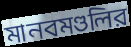
মানবমণ্ডলির